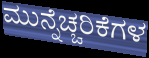
ಮುನ್ನೆಚ್ಚರಿಕೆಗಳ